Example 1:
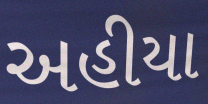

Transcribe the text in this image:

અહીયા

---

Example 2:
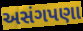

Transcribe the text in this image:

અસંગપણા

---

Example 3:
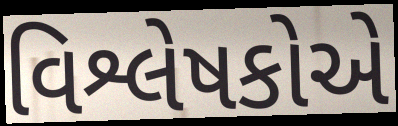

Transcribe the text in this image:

વિશ્લેષકોએ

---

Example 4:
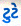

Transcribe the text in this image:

ટુટે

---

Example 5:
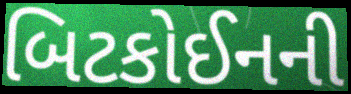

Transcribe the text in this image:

બિટકોઈનની